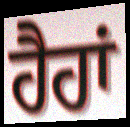
ਹੈਹਾਂ